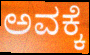
ಅವಕ್ಕೆ